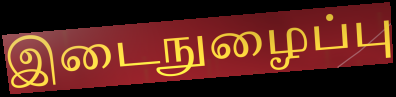
இடைநுழைப்பு